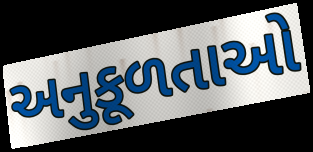
અનુકૂળતાઓ